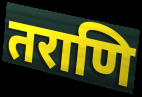
तराणि